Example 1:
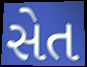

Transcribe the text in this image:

સેત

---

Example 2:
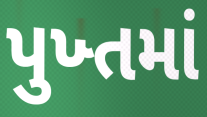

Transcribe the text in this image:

પુખ્તમાં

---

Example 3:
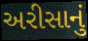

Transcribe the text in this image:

અરીસાનું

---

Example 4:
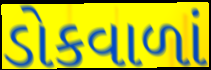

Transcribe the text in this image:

ડોકવાળાં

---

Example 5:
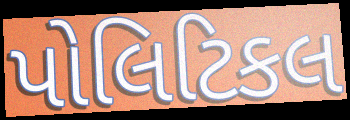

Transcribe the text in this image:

પોલિટિકલ